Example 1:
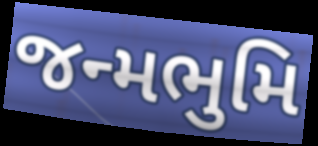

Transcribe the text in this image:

જન્મભુમિ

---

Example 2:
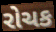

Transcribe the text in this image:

રોચક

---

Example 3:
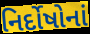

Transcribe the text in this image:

નિર્દોષોનાં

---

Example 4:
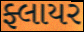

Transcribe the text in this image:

ફ્લાયર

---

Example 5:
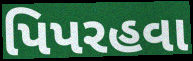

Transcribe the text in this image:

પિપરહવા